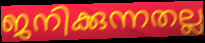
ജനിക്കുന്നതല്ല